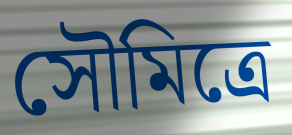
সৌমিত্রে